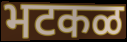
भटकळ